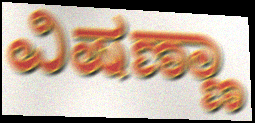
ವಿಷಣ್ಣಾ